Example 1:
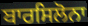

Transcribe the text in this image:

ਬਾਰਸਿਲੋਨਾ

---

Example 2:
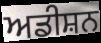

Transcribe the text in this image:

ਅਡੀਸ਼ਨ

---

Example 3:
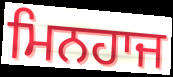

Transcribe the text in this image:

ਮਿਨਹਾਜ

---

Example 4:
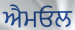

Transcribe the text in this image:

ਐਮਓਲ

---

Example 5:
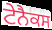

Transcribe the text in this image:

ਟੇਨੈਕਸ